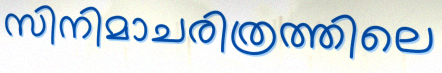
സിനിമാചരിത്രത്തിലെ